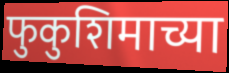
फुकुशिमाच्या